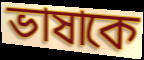
ভাষাকে